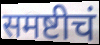
समष्टीचं